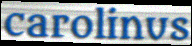
carolinus